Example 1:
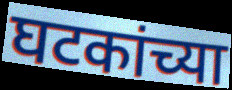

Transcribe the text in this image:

घटकांच्या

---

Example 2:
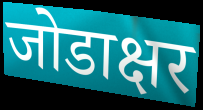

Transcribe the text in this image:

जोडाक्षर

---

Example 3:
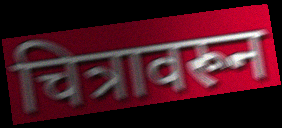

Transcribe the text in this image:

चित्रावरून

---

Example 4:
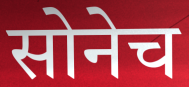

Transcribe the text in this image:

सोनेच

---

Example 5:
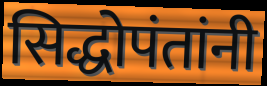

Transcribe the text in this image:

सिद्धोपंतांनी